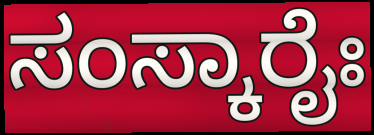
ಸಂಸ್ಕಾರೈಃ